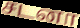
சடனா